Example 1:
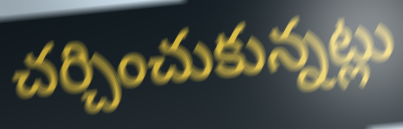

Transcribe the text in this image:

చర్చించుకున్నట్లు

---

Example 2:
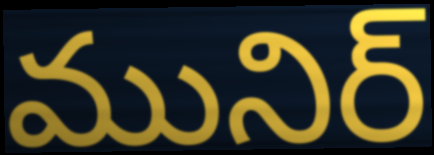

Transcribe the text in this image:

మునిర్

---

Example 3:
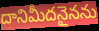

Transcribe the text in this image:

దానిమీదనైనను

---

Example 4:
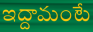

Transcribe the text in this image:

ఇద్దామంటే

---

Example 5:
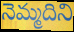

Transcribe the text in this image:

నెమ్మదిని